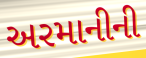
અરમાનીની